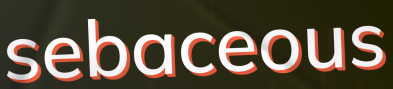
sebaceous